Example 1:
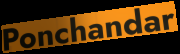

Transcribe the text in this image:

Ponchandar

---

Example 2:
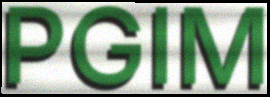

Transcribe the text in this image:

PGIM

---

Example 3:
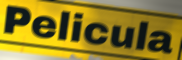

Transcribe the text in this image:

Pelicula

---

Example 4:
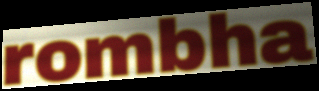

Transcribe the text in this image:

rombha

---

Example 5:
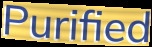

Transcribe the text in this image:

Purified